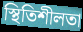
স্থিতিশীলতা